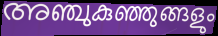
അഞ്ചുകുഞ്ഞുങ്ങളും